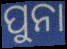
ପୁନା